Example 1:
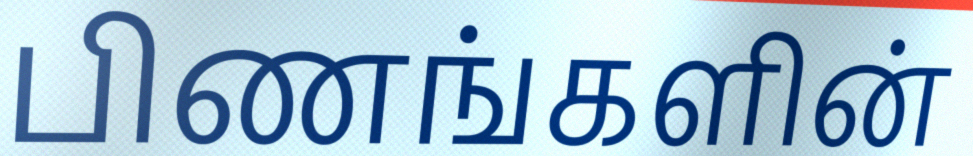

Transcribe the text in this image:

பிணங்களின்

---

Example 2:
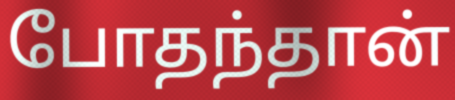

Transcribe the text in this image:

போதந்தான்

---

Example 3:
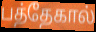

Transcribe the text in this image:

பத்தேகால்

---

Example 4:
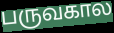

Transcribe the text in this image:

பருவகால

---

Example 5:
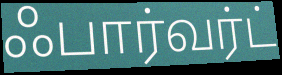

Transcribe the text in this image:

ஃபார்வர்ட்